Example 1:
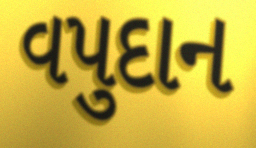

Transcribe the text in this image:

વપુદાન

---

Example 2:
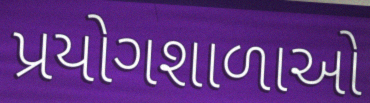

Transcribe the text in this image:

પ્રયોગશાળાઓ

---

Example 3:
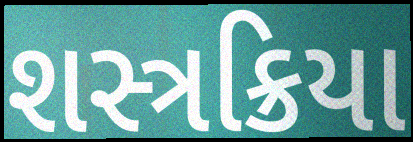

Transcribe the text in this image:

શસ્ત્રક્રિયા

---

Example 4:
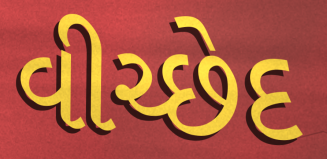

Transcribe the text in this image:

વીચ્છેદ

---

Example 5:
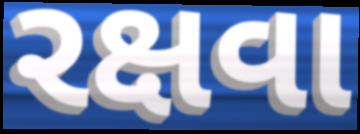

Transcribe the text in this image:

રક્ષવા